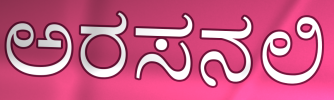
ಅರಸನಲಿ